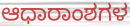
ಆಧಾರಾಂಶಗಳ